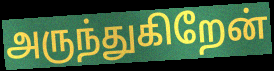
அருந்துகிறேன்